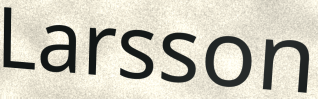
Larsson